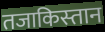
तजाकिस्‍तान